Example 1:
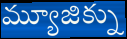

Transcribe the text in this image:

మ్యూజిక్ను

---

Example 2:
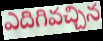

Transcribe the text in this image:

ఎదిగివచ్చిన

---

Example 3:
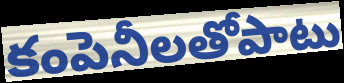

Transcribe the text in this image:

కంపెనీలతోపాటు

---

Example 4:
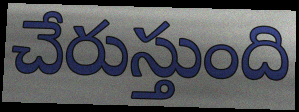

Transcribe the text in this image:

చేరుస్తుంది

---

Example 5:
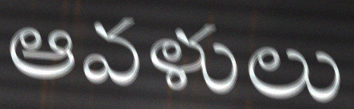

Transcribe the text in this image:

ఆవళులు